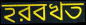
হরবখত